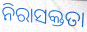
ନିରାସକ୍ତତା